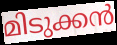
മിടുക്കൻ